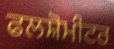
ਫਲਸ਼ੋਮੀਟਰ